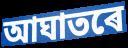
আঘাতৰে